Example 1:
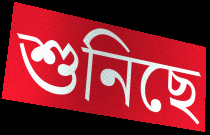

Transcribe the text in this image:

শুনিছে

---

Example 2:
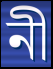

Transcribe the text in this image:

নী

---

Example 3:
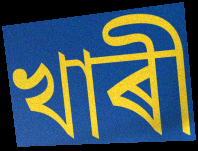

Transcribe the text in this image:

খাৰী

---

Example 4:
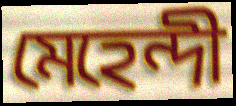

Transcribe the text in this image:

মেহেন্দী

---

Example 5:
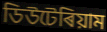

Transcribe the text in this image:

ডিউটেৰিয়াম